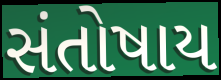
સંતોષાય